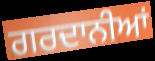
ਗਰਦਾਨੀਆਂ